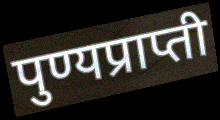
पुण्यप्राप्ती